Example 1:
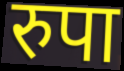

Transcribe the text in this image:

रुपा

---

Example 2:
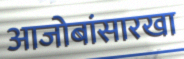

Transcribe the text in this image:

आजोबांसारखा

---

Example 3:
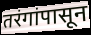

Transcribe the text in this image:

तरंगांपासून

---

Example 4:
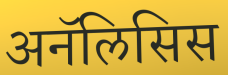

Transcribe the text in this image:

अनॅलिसिस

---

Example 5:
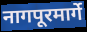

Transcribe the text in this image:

नागपूरमार्गे